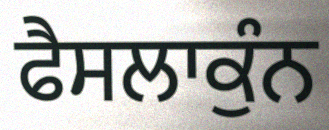
ਫੈਸਲਾਕੁੰਨ